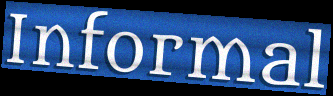
Informal